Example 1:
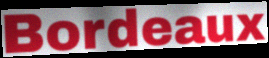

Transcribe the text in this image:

Bordeaux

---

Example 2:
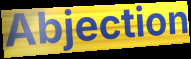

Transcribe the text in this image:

Abjection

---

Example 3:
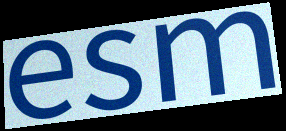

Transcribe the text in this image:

esm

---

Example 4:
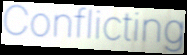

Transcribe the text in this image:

Conflicting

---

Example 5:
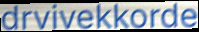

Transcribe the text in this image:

drvivekkorde